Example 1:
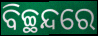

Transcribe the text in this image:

ବିଚ୍ଛନ୍ଦରେ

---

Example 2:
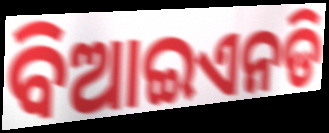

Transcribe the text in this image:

ବିଆଇଏନଡି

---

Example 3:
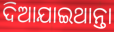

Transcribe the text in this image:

ଦିଆଯାଇଥାନ୍ତା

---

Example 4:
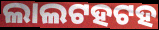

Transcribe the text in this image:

ଲାଲଟହଟହ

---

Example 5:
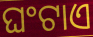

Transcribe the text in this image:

ଘଂଟାଏ